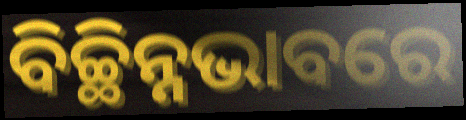
ବିଚ୍ଛିନ୍ନଭାବରେ